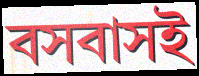
বসবাসই